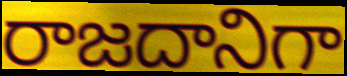
రాజదానిగా